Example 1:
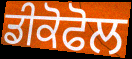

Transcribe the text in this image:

ਡੀਕੋਫੋਲ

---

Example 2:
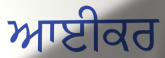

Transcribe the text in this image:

ਆਈਕਰ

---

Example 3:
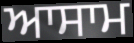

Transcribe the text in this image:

ਆਸਾਮ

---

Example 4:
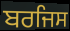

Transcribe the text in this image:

ਬਰਜਿਸ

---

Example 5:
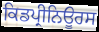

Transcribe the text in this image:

ਕਿਡਪ੍ਰੀਨਿਊਰਸ